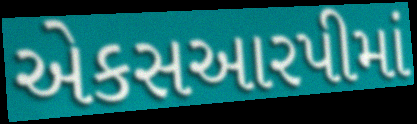
એકસઆરપીમાં